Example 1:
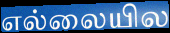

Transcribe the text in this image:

எல்லையில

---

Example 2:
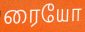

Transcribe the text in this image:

ரையோ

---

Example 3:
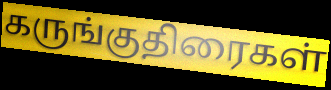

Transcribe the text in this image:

கருங்குதிரைகள்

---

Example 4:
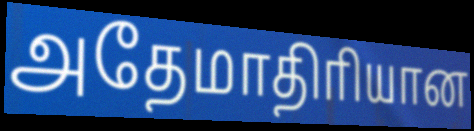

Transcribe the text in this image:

அதேமாதிரியான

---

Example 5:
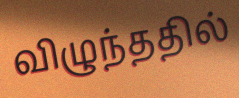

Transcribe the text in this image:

விழுந்ததில்